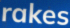
rakes